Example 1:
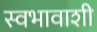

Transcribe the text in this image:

स्वभावाशी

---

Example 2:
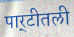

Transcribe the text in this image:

पार्टीतली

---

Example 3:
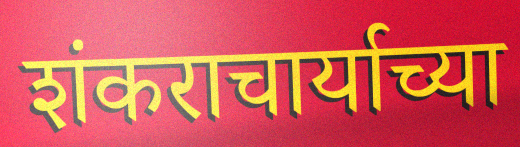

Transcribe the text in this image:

शंकराचार्याच्या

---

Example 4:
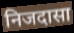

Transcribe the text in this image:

निजदासा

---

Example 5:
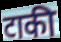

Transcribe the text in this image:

टाकी